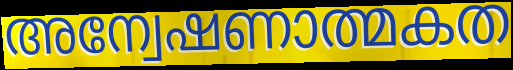
അന്വേഷണാത്മകത